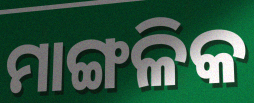
ମାଙ୍ଗଳିକ